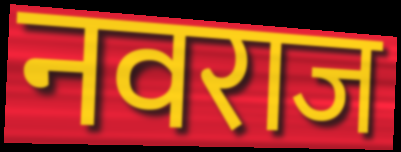
नवराज